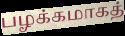
பழக்கமாகத்